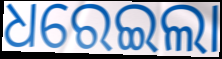
ଧରେଇଲା